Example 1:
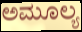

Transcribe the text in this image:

ಅಮೂಲ್ಯ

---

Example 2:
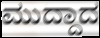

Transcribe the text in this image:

ಮುದ್ದಾದ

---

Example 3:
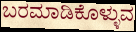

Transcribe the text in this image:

ಬರಮಾಡಿಕೊಳ್ಳುವ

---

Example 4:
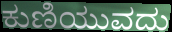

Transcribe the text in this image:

ಕುಣಿಯುವದು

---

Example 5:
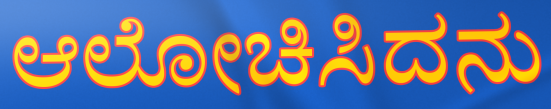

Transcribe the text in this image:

ಆಲೋಚಿಸಿದನು